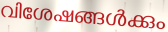
വിശേഷങ്ങൾക്കും